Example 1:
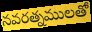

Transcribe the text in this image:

నవరత్నములతో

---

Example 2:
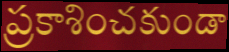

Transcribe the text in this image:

ప్రకాశించకుండా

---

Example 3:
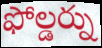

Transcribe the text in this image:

ఫోల్డర్ను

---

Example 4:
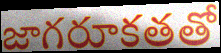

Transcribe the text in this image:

జాగరూకతతో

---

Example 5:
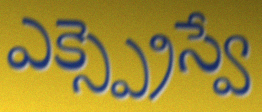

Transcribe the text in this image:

ఎక్స్ప్రెస్వే